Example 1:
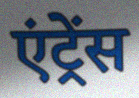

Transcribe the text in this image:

एंट्रेंस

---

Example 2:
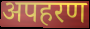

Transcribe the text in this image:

अपहरण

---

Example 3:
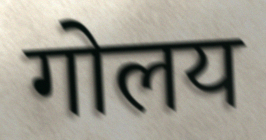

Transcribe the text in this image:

गोलय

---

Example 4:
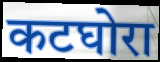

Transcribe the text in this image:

कटघोरा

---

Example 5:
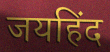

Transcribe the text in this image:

जयहिंद